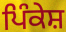
ਪਿੰਕੇਸ਼